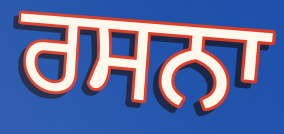
ਰਸਨਾ